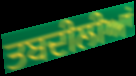
ਤਬਦੀਲੀਆਂ